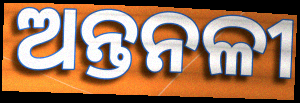
ଅନ୍ତନଳୀ